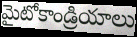
మైటోకాండ్రియాలు